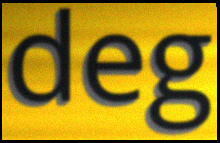
deg